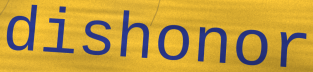
dishonor